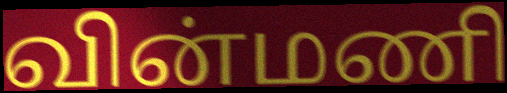
வின்மணி